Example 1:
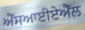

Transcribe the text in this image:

ਐੱਸਆਈਏਐੱਲ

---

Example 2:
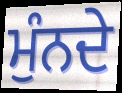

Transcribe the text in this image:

ਮੁੰਨਦੇ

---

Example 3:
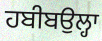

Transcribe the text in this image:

ਹਬੀਬਉਲ੍ਹਾ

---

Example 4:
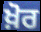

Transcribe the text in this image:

ਖ਼ੋਰ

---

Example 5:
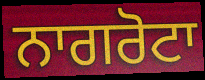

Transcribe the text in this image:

ਨਾਗਰੋਟਾ